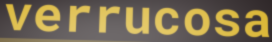
verrucosa